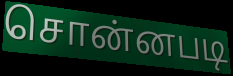
சொன்னபடி